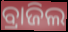
ବ୍ରାଜିଲ